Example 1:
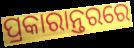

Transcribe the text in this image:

ପ୍ରକାରାନ୍ତରରେ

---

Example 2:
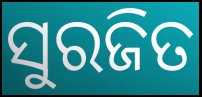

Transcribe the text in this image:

ସୁରଜିତ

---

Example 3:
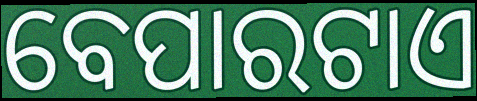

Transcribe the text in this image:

ବେପାରଟାଏ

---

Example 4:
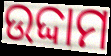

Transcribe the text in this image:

ଉଦ୍ଦାମ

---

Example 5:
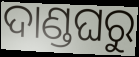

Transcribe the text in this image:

ଦାଣ୍ଡଘରୁ